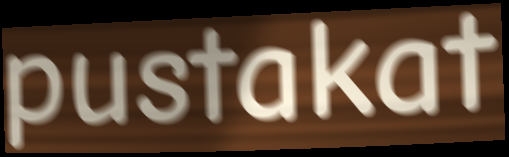
pustakat